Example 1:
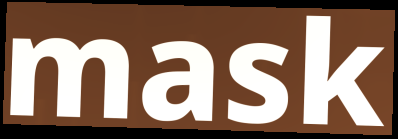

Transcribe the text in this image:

mask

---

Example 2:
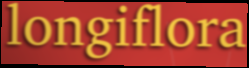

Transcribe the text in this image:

longiflora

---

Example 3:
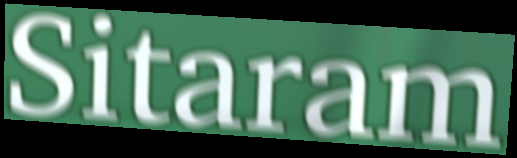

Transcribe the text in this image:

Sitaram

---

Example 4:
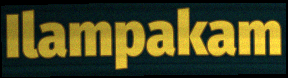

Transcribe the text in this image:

Ilampakam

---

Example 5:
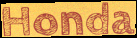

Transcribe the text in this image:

Honda